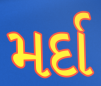
મર્દા